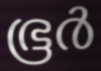
ഭൂർ